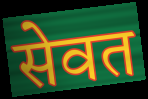
सेवत